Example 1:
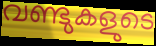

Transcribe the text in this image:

വണ്ടുകളുടെ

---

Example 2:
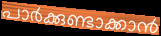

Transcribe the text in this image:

പാർക്കുണ്ടാക്കാൻ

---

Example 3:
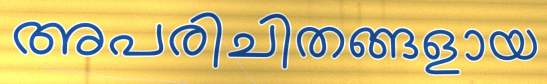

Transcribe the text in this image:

അപരിചിതങ്ങളായ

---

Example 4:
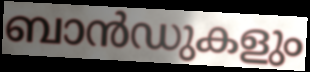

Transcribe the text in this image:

ബാൻഡുകളും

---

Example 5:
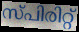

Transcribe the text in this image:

സ്പിരിറ്റ്